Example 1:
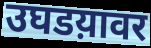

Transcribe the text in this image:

उघडय़ावर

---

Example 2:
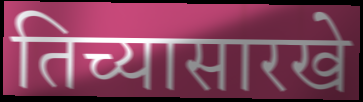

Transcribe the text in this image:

तिच्यासारखे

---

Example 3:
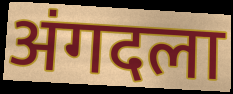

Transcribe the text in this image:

अंगदला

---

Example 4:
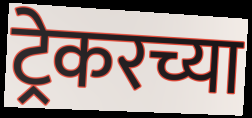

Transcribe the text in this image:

ट्रेकरच्या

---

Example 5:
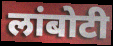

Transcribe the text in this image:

लांबोटी